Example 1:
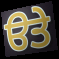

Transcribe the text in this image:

ੳਤੇ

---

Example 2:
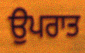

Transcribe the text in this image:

ਉਪਰਾਤ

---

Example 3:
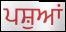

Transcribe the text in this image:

ਪਸ਼ੁਆਂ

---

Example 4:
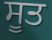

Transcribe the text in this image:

ਸੂਤ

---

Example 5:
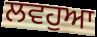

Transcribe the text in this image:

ਲਵਹੁਆ